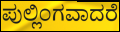
ಪುಲ್ಲಿಂಗವಾದರೆ